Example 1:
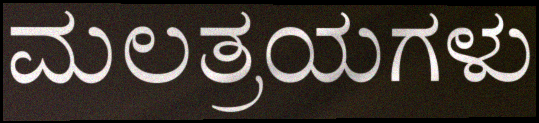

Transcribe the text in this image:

ಮಲತ್ರಯಗಳು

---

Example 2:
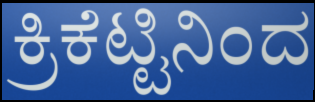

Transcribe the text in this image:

ಕ್ರಿಕೆಟ್ಟಿನಿಂದ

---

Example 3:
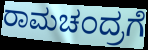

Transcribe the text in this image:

ರಾಮಚಂದ್ರಗೆ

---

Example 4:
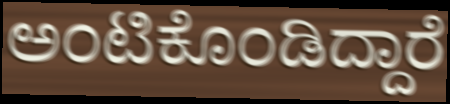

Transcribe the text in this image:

ಅಂಟಿಕೊಂಡಿದ್ದಾರೆ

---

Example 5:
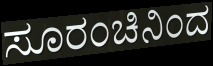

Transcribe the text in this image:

ಸೂರಂಚಿನಿಂದ